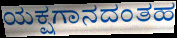
ಯಕ್ಷಗಾನದಂತಹ